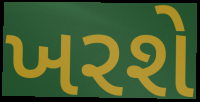
ખરશે